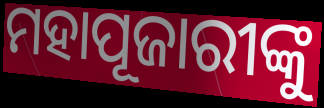
ମହାପୂଜାରୀଙ୍କୁ